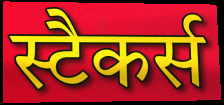
स्टैकर्स